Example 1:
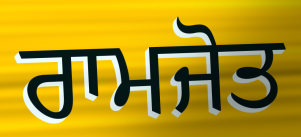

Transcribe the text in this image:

ਰਾਮਜੋਤ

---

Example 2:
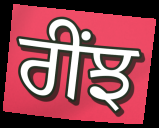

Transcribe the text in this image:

ਰੀਂਝ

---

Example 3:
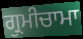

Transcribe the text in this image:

ਗ੍ਰੁਮੀਚਾਮਾ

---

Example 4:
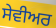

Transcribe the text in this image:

ਸੇਵੀਅਰ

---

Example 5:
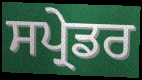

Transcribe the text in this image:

ਸਪ੍ਰੇਡਰ